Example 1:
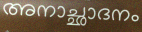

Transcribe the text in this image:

അനാച്ഛാദനം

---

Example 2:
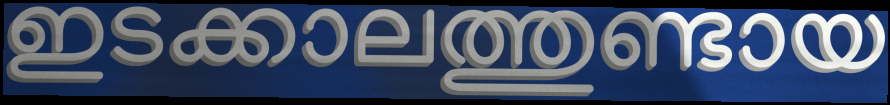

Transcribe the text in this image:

ഇടക്കാലത്തുണ്ടായ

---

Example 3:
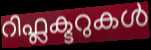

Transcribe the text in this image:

റിഫ്ലക്ടറുകൾ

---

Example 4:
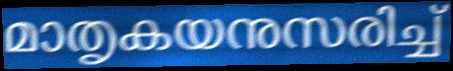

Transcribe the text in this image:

മാതൃകയനുസരിച്ച്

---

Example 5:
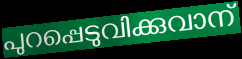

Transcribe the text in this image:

പുറപ്പെടുവിക്കുവാന്